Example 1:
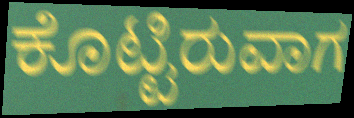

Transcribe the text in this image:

ಕೊಟ್ಟಿರುವಾಗ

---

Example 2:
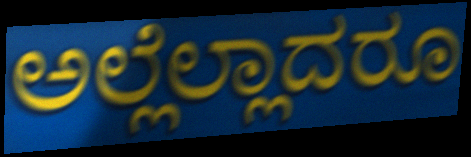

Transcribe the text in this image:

ಅಲ್ಲೆಲ್ಲಾದರೂ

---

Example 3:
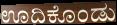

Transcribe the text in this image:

ಊದಿಕೊಂಡು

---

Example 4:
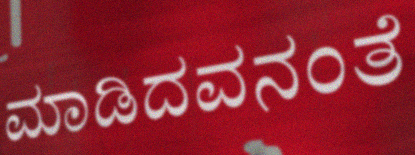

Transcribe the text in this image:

ಮಾಡಿದವನಂತೆ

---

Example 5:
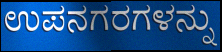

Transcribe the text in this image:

ಉಪನಗರಗಳನ್ನು